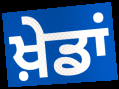
ਖ਼ੇਡਾਂ